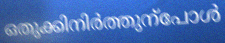
ഒതുക്കിനിർത്തുന്പോൾ